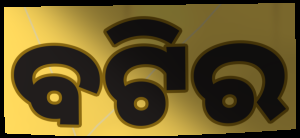
ବଟିର